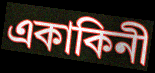
একাকিনী